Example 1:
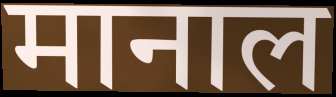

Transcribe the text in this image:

मानाल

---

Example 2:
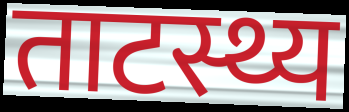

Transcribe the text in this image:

ताटस्थ्य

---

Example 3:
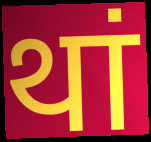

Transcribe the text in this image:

थां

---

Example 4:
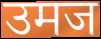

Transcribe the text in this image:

उमज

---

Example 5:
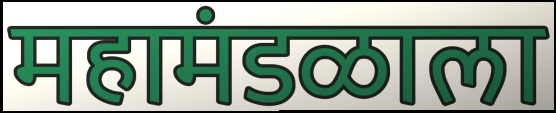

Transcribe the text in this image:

महामंडळाला